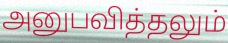
அனுபவித்தலும்